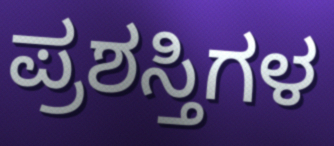
ಪ್ರಶಸ್ತಿಗಳ